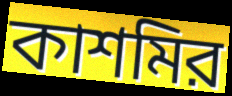
কাশমির